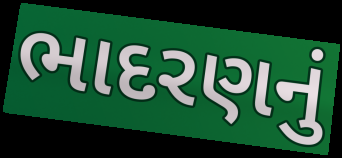
ભાદરણનું